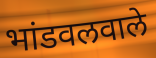
भांडवलवाले